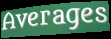
Averages